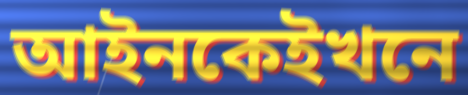
আইনকেইখনে